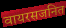
वायरसजनित